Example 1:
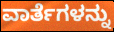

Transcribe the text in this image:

ವಾರ್ತೆಗಳನ್ನು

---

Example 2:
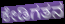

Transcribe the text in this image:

ಕೇಡಿಗತನ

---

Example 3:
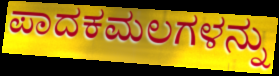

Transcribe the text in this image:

ಪಾದಕಮಲಗಳನ್ನು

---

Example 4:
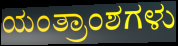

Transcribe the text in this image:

ಯಂತ್ರಾಂಶಗಳು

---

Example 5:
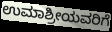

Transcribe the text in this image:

ಉಮಾಶ್ರೀಯವರಿಗೆ